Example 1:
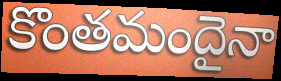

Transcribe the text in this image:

కొంతమందైనా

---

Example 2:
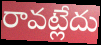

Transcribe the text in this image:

రావట్లేదు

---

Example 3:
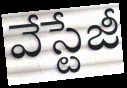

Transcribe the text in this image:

వేస్టేజీ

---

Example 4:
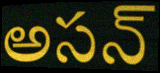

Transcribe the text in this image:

అసన్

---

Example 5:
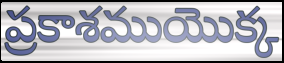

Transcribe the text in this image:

ప్రకాశముయొక్క